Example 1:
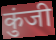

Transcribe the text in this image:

कुंजी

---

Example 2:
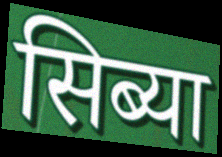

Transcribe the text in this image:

सिब्या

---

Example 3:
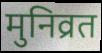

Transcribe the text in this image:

मुनिव्रत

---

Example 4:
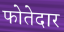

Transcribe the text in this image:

फोतेदार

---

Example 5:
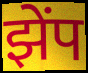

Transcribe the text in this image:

झेंप